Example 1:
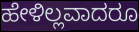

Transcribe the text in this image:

ಹೇಳಿಲ್ಲವಾದರೂ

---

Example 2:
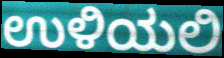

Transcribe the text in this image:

ಉಳಿಯಲಿ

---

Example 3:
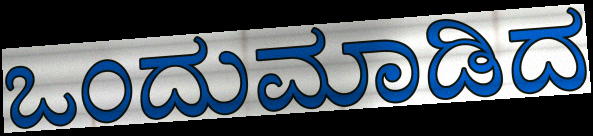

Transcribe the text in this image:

ಒಂದುಮಾಡಿದ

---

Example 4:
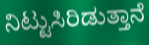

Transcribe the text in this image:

ನಿಟ್ಟುಸಿರಿಡುತ್ತಾನೆ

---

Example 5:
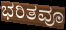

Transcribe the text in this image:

ಭರಿತವೂ